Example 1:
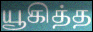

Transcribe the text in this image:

யூகித்த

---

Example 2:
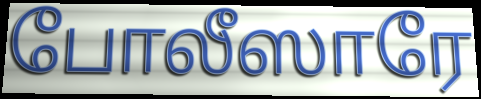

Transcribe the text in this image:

போலீஸாரே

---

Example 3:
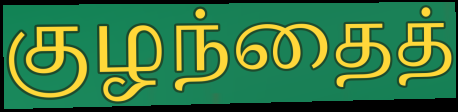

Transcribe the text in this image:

குழந்தைத்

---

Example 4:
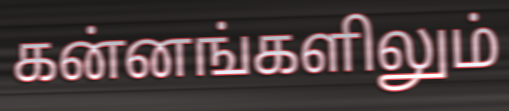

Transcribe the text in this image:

கன்னங்களிலும்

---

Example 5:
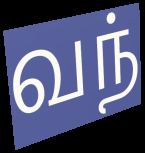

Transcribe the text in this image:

வந்